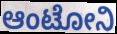
ಆಂಟೋನಿ